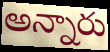
అన్నారు